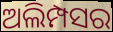
ଅଲିମ୍ପସର